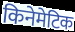
किनेमेटिक